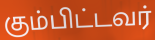
கும்பிட்டவர்